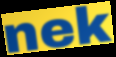
nek